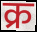
क्र